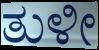
ತುಳೀ